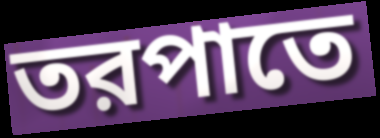
তরপাতে